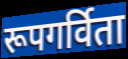
रूपगर्विता